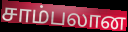
சாம்பலான